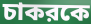
চাকরকে